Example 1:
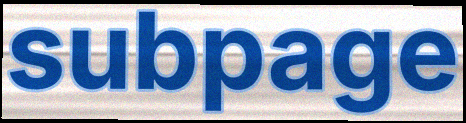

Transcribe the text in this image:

subpage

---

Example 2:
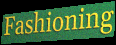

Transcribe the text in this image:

Fashioning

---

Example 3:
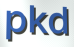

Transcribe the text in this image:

pkd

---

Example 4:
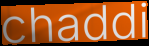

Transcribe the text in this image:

chaddi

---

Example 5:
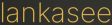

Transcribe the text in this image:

lankasee